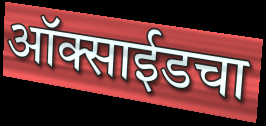
ऑक्साईडचा